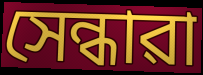
সেন্ধাৱা